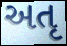
અતૃ